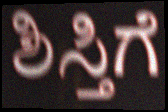
ಶಿಸ್ತಿಗೆ